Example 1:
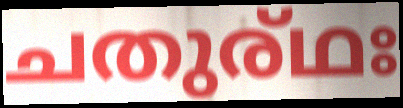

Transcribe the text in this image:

ചതുര്ഥഃ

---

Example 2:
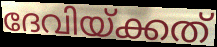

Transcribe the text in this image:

ദേവിയ്ക്കത്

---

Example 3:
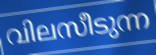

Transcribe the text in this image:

വിലസീടുന്ന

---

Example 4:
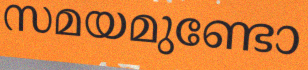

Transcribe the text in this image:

സമയമുണ്ടോ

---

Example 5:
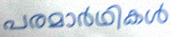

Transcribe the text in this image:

പരമാർഥികൾ